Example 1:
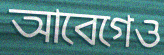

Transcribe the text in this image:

আবেগেও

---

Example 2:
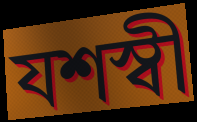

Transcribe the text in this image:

যশস্বী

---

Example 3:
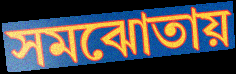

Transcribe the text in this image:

সমঝোতায়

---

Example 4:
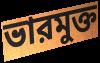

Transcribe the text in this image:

ভারমুক্ত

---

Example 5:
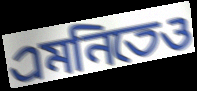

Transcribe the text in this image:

এমনিতেও